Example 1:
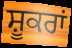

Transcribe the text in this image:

ਸ਼ੂਕਰਾਂ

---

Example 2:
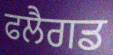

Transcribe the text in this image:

ਫਲੈਗਡ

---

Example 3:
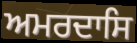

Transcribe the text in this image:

ਅਮਰਦਾਸਿ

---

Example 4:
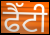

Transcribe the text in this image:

ਫੈੱਟੀ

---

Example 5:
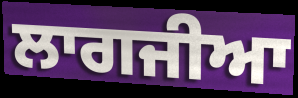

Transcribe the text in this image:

ਲਾਗਜੀਆ